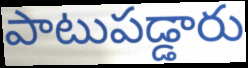
పాటుపడ్డారు